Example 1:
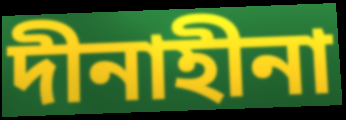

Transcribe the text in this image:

দীনাহীনা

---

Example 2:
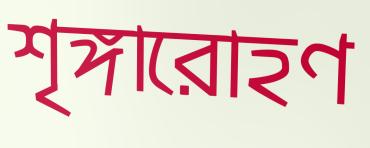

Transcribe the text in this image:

শৃঙ্গারোহণ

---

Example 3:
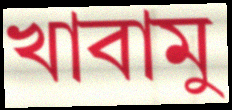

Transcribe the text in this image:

খাবামু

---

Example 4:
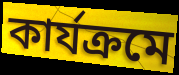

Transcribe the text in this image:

কার্যক্রমে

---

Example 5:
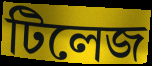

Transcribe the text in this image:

টিলেজ